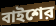
বাইশের